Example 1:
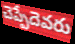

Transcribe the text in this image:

చెప్పేదెవరు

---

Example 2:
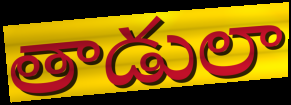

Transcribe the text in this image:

తాడులా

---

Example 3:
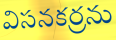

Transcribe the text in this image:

విసనకర్రను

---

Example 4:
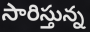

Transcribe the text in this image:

సారిస్తున్న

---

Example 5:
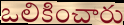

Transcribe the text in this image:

ఒలికించారు